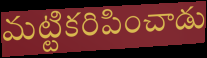
మట్టికరిపించాడు